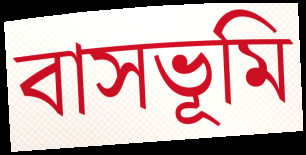
বাসভূমি